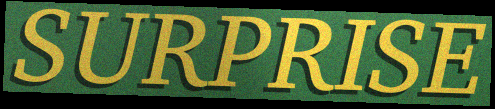
SURPRISE